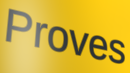
Proves